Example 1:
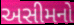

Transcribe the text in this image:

અસીમનો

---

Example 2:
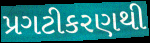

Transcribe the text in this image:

પ્રગટીકરણથી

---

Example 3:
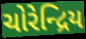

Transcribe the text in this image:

ચોરેન્દ્રિય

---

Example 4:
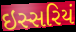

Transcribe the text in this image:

ઇસ્સરિયં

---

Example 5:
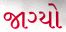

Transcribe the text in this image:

જાગ્યો